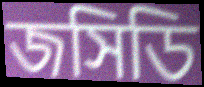
জসিডি